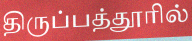
திருப்பத்தூரில்